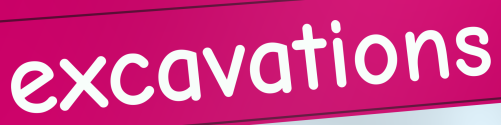
excavations